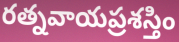
రత్నవాయప్రశస్తిం